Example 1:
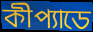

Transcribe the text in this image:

কীপ্যাডে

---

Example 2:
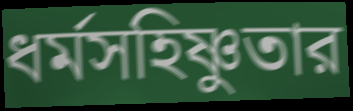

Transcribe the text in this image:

ধর্মসহিষ্ণুতার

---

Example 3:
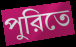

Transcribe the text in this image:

পুরিতে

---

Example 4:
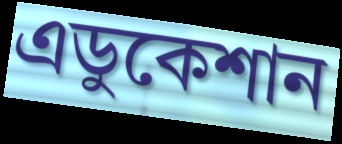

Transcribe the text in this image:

এডুকেশান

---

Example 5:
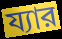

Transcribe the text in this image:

য্যার